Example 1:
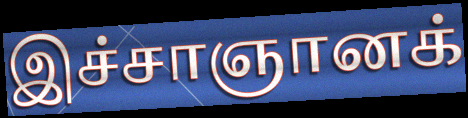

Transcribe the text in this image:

இச்சாஞானக்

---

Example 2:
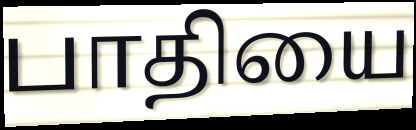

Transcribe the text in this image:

பாதியை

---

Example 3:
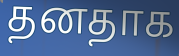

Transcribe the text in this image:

தனதாக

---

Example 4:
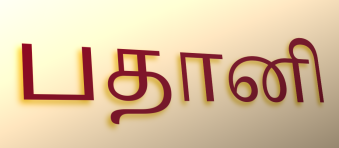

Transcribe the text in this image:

பதானி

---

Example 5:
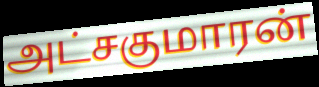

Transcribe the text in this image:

அட்சகுமாரன்